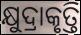
କ୍ଷୁଦ୍ରାକୃତ୍ତି